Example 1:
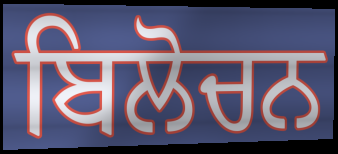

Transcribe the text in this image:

ਬਿਲੋਚਨ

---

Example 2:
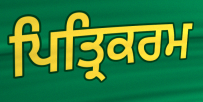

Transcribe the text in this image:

ਪਿਤ੍ਰਿਕਰਮ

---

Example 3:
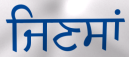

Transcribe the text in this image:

ਜਿਣਸਾਂ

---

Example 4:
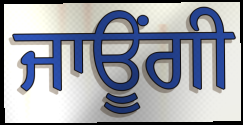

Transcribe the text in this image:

ਜਾਊਂਗੀ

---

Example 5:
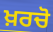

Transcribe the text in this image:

ਖ਼ਰਚੋ